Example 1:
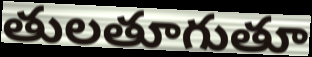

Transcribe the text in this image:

తులతూగుతూ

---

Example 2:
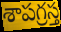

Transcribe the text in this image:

శాపగ్రస్త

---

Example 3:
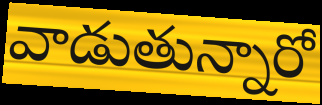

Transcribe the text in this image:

వాడుతున్నారో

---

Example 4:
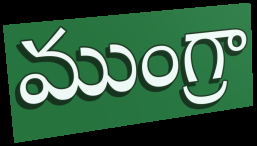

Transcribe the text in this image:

ముంగ్రా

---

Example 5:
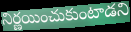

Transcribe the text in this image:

నిర్ణయించుకుంటాడని